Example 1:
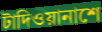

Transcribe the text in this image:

টাদিওয়ানাশে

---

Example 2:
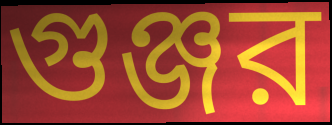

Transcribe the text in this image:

গুঞ্জর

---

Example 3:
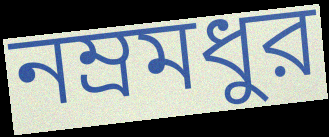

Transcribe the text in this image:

নম্রমধুর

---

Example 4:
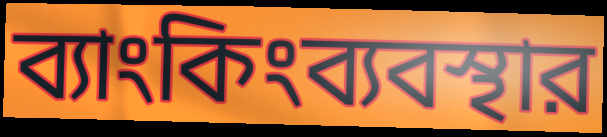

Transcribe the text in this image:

ব্যাংকিংব্যবস্থার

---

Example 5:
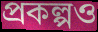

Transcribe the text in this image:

প্রকল্পও